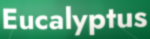
Eucalyptus